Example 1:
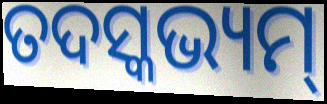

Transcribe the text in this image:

ତଦସ୍କଭ୍ୟମ୍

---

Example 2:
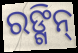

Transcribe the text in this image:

ରଙ୍ଗିନ୍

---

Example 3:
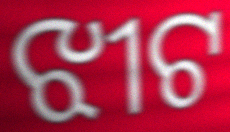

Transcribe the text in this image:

ଝୀଟ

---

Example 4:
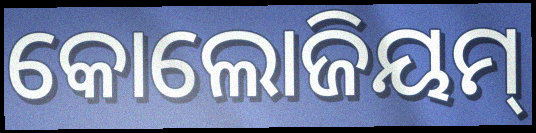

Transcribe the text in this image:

କୋଲୋଜିୟମ୍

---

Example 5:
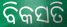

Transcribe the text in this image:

ବିକସତି